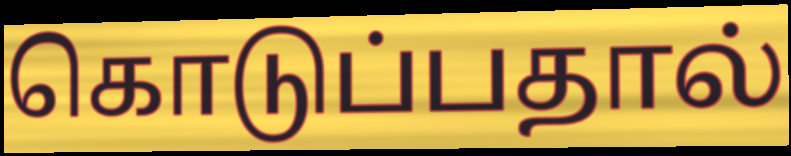
கொடுப்பதால்